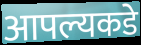
आपल्यकडे